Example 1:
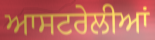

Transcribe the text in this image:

ਆਸਟਰੇਲੀਆਂ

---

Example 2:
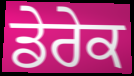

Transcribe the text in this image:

ਡੇਰੇਕ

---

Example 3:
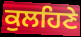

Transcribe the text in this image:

ਕੁਲਹਿਣੇ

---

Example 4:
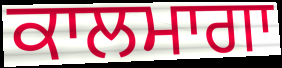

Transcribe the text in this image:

ਕਾਲਮਾਗਾ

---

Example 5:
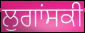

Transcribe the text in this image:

ਲੁਗਾਂਸਕੀ